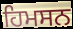
ਹਿਮਸਨ